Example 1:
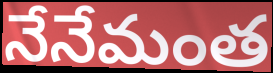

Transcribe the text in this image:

నేనేమంత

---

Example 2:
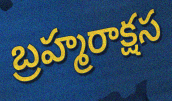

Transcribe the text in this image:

బ్రహ్మరాక్షస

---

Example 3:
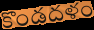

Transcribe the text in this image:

కొండదళం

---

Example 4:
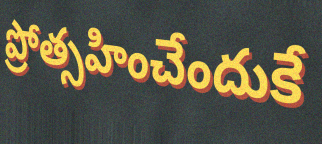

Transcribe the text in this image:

ప్రోత్సహించేందుకే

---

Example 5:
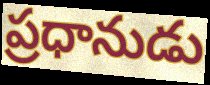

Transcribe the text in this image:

ప్రధానుడు